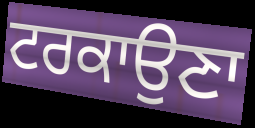
ਟਰਕਾਉਣਾ